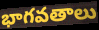
భాగవతాలు